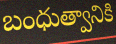
బంధుత్వానికి